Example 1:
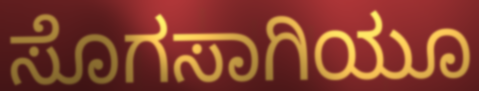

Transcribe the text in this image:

ಸೊಗಸಾಗಿಯೂ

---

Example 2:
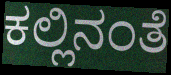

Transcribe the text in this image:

ಕಲ್ಲಿನಂತೆ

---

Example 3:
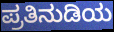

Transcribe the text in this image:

ಪ್ರತಿನುಡಿಯ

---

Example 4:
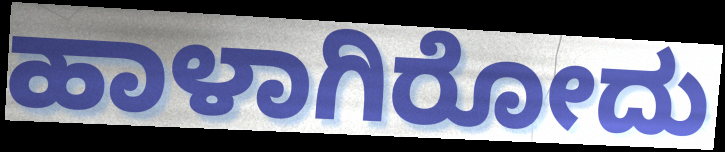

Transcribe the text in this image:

ಹಾಳಾಗಿರೋದು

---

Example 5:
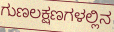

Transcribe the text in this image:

ಗುಣಲಕ್ಷಣಗಳಲ್ಲಿನ